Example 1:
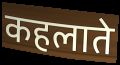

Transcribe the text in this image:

कहलाते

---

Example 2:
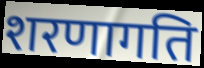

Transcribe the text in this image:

शरणागति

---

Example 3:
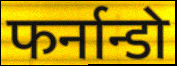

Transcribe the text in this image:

फर्नान्डो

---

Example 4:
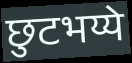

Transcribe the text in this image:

छुटभय्ये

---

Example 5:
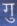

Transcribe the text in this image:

गु